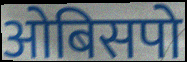
ओबिसपो